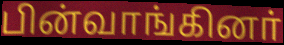
பின்வாங்கினர்